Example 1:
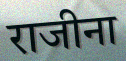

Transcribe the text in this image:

राजीना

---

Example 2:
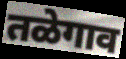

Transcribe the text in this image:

तळेगाव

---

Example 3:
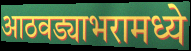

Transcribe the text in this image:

आठवड्याभरामध्ये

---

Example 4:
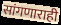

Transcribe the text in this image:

सांगणाराही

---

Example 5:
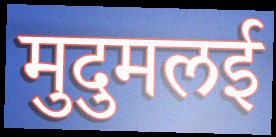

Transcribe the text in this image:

मुदुमलई